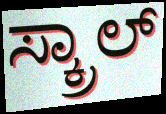
ಸ್ಕ್ರಾಲ್